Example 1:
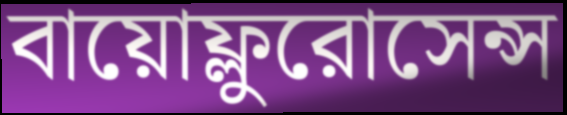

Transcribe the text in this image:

বায়োফ্লুরোসেন্স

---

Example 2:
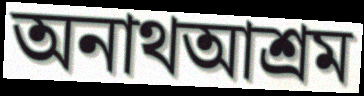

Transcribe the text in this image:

অনাথআশ্রম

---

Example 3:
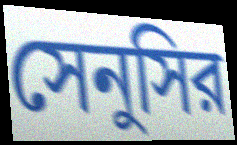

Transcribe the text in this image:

সেনুসির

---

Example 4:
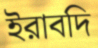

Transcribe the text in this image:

ইরাবদি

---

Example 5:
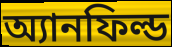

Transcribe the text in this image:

অ্যানফিল্ড